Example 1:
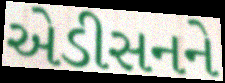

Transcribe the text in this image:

એડીસનને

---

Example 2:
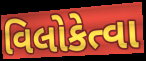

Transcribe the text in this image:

વિલોકેત્વા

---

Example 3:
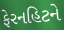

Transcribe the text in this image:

ફેરનહિટને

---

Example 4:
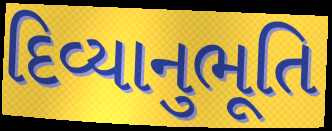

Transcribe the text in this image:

દિવ્યાનુભૂતિ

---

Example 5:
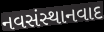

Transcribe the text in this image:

નવસંસ્થાનવાદ